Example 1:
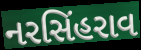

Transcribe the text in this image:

નરસિંહરાવ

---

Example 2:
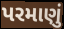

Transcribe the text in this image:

પરમાણું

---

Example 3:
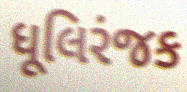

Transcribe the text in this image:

ધૂલિરંજક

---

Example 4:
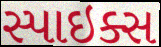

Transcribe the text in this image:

સ્પાઇક્સ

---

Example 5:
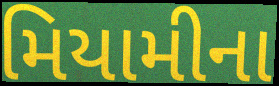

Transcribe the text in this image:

મિયામીના